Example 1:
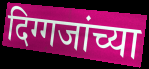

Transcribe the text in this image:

दिग्गजांच्या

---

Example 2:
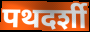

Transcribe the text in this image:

पथदर्शी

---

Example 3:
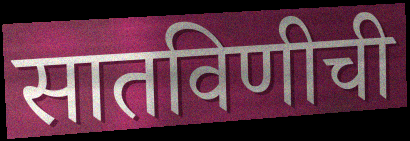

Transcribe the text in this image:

सातविणीची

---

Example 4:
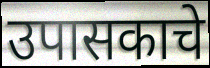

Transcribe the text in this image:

उपासकाचे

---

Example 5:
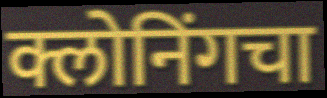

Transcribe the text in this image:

क्लोनिंगचा